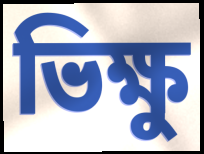
ভিক্ষু